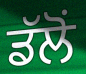
ਡੱਲੋਂ